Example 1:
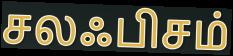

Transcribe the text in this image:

சலஃபிசம்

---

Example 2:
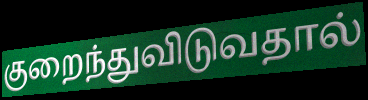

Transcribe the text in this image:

குறைந்துவிடுவதால்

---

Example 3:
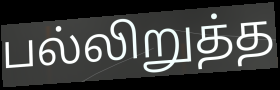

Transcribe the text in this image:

பல்லிறுத்த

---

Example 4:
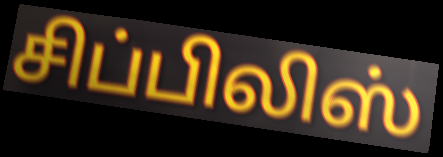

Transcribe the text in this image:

சிப்பிலிஸ்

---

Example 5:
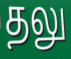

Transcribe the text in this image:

தலு